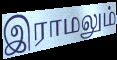
இராமலும்